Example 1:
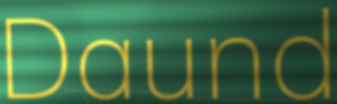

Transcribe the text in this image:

Daund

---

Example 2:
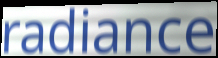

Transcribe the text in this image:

radiance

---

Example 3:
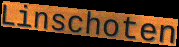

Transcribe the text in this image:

Linschoten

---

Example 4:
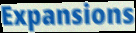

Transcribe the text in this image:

Expansions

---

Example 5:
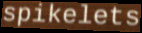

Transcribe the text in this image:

spikelets